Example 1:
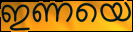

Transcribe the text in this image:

ഇണയെ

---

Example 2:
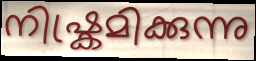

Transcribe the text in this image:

നിഷ്ക്രമിക്കുന്നു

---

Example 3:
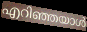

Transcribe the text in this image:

എറിഞ്ഞയാൾ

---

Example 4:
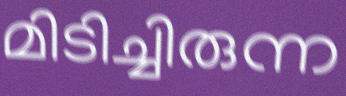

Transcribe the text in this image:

മിടിച്ചിരുന്ന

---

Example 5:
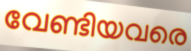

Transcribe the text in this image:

വേണ്ടിയവരെ